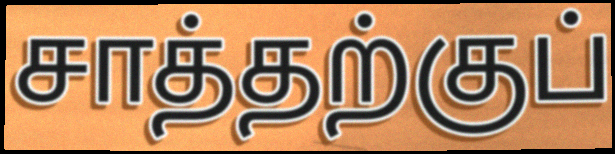
சாத்தற்குப்